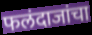
फलंदाजांचा